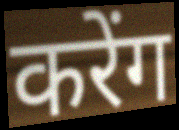
करेंग